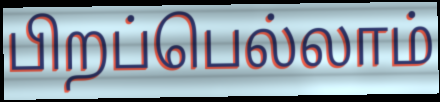
பிறப்பெல்லாம்